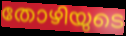
തോഴിയുടെ